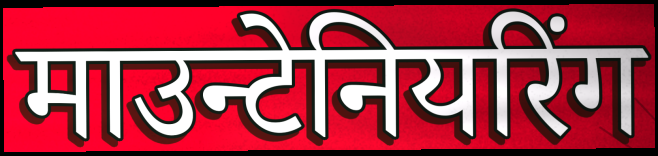
माउन्टेनियरिंग